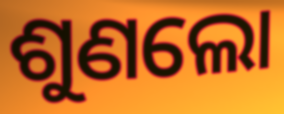
ଶୁଣଲୋ